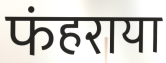
फंहराया